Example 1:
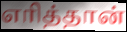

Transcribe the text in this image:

எரித்தான்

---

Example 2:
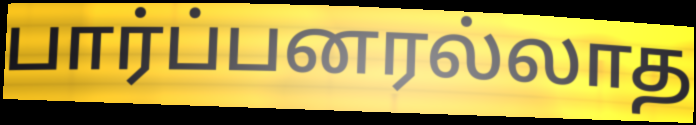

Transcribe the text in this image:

பார்ப்பனரல்லாத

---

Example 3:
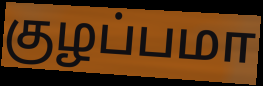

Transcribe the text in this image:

குழப்பமா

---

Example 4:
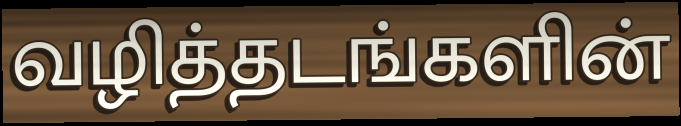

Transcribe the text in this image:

வழித்தடங்களின்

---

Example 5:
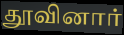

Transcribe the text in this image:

தூவினார்